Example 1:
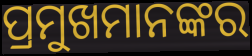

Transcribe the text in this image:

ପ୍ରମୁଖମାନଙ୍କର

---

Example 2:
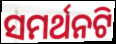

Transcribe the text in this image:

ସମର୍ଥନଟି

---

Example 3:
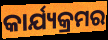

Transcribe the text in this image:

କାର୍ଯ୍ୟକ୍ରମର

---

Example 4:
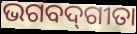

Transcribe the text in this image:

ଭଗବଦ୍‍ଗୀତା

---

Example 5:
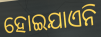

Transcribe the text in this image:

ହୋଇଯାଏନି